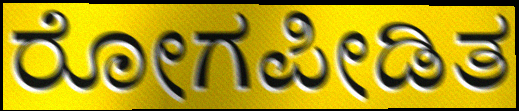
ರೋಗಪೀಡಿತ